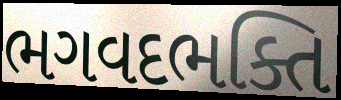
ભગવદભક્તિ